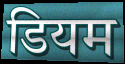
डियम